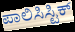
ಪಾಲಿಸಿಸ್ಟಿಕ್